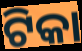
ଟିକା